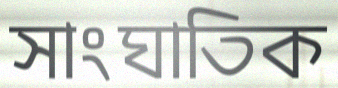
সাংঘাতিক